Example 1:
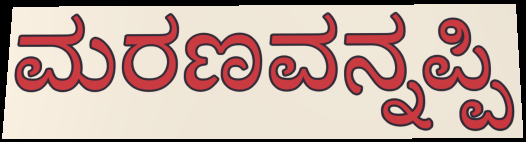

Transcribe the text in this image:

ಮರಣವನ್ನಪ್ಪಿ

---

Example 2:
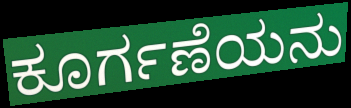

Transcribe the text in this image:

ಕೂರ್ಗಣೆಯನು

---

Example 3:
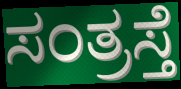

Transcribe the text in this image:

ಸಂತ್ರಸ್ತೆ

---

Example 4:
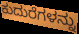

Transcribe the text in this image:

ಕುದುರೆಗಳನ್ನು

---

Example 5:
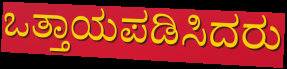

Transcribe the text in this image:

ಒತ್ತಾಯಪಡಿಸಿದರು